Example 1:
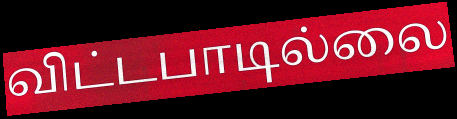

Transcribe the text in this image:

விட்டபாடில்லை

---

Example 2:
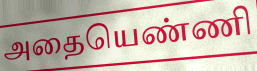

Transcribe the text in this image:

அதையெண்ணி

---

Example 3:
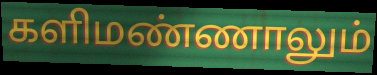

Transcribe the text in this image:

களிமண்ணாலும்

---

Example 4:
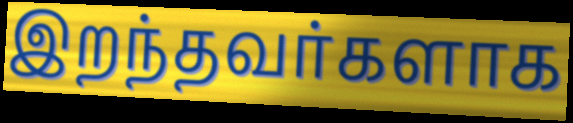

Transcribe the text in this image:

இறந்தவர்களாக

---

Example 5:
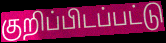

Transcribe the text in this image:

குறிப்பிடப்பட்டு